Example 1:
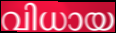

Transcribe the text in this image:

വിധായ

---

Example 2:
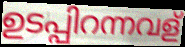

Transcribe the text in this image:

ഉടപ്പിറന്നവള്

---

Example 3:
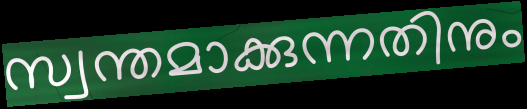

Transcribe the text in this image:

സ്വന്തമാക്കുന്നതിനും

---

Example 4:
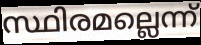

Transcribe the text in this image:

സ്ഥിരമല്ലെന്ന്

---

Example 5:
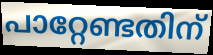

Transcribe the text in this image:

പാറ്റേണ്ടതിന്